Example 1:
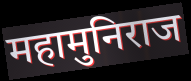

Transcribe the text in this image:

महामुनिराज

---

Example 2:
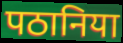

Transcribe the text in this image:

पठानिया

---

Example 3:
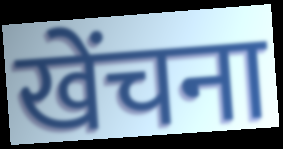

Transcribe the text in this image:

खेंचना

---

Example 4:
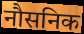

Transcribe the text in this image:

नौसनिक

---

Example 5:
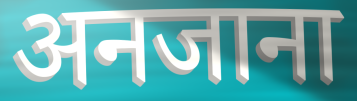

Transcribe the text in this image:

अनजाना